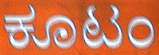
ಕೂಟಂ